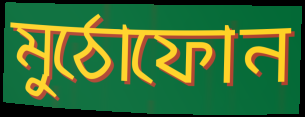
মুঠোফোন